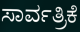
ಸಾರ್ವತ್ರಿಕೆ